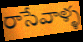
రాసేవాళ్ళ